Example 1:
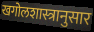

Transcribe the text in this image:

खगोलशास्त्रानुसार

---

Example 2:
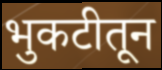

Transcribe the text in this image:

भुकटीतून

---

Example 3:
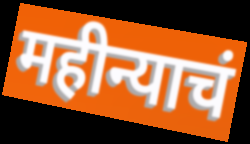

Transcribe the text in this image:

महीन्याचं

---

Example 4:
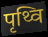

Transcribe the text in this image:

पृथ्वि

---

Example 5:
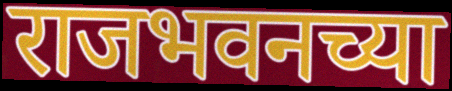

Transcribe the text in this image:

राजभवनच्या